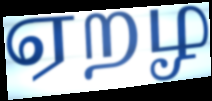
ஏறழ